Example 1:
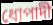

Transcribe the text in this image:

ধোপাদী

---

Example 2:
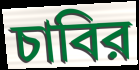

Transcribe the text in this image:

চাবির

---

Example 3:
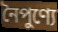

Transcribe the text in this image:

নৈপুণ্যে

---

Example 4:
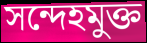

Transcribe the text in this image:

সন্দেহমুক্ত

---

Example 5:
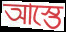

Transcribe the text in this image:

আস্তে